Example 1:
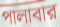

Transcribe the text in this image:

পালাবার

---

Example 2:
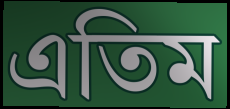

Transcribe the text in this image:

এতিম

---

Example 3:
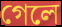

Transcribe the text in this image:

গেলে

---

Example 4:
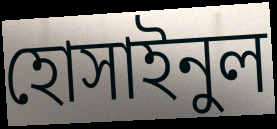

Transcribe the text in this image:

হোসাইনুল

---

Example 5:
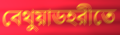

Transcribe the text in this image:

বেথুয়াডহরীতে